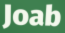
Joab